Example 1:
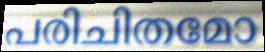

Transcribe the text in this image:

പരിചിതമോ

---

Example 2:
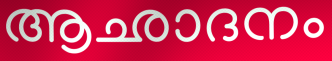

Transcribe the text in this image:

ആഛാദനം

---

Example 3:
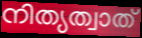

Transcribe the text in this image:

നിത്യത്വാത്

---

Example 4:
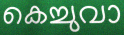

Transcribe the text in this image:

കെച്ചുവാ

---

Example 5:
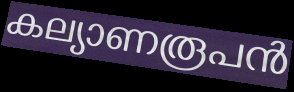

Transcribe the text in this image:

കല്യാണരൂപൻ